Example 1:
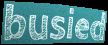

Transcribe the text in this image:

busied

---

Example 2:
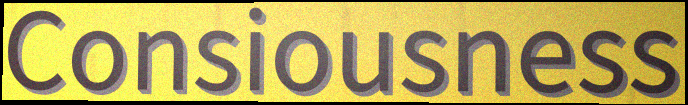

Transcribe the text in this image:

Consiousness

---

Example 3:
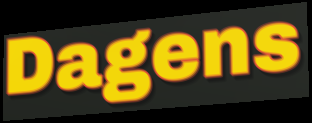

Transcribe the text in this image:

Dagens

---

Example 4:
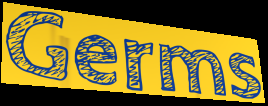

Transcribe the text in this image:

Germs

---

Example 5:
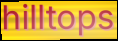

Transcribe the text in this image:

hilltops